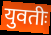
युवतीः